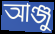
আঞ্জু